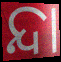
ନ୍ଦା